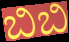
ಬಿಬಿ